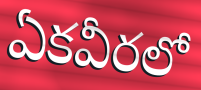
ఏకవీరలో